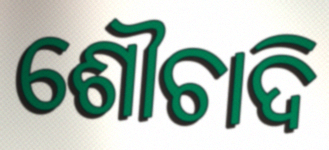
ଶୌଚାଦି